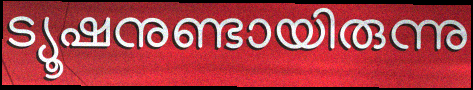
ട്യൂഷനുണ്ടായിരുന്നു